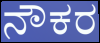
ನೌಕರ